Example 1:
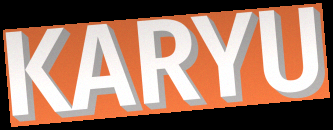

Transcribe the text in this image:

KARYU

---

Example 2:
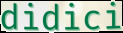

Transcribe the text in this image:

didici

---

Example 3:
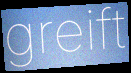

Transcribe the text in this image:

greift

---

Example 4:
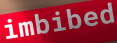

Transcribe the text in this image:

imbibed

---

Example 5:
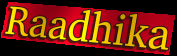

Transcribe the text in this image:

Raadhika